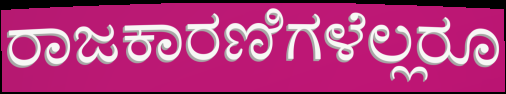
ರಾಜಕಾರಣಿಗಳೆಲ್ಲರೂ